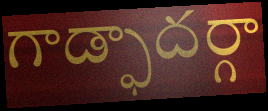
గాడ్ఫాదర్గా